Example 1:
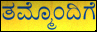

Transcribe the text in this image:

ತಮ್ಮೊಂದಿಗೆ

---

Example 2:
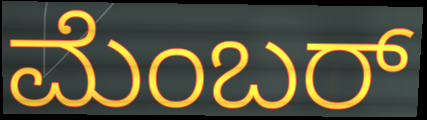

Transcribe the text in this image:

ಮೆಂಬರ್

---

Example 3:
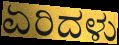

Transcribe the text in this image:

ಏರಿದಳು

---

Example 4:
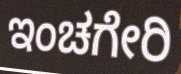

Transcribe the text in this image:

ಇಂಚಗೇರಿ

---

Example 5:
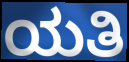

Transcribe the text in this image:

ಯತಿ